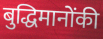
बुद्धिमानोंकी